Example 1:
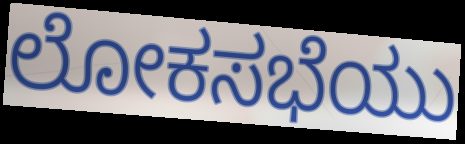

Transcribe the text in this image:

ಲೋಕಸಭೆಯು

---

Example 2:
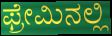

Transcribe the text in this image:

ಫ್ರೇಮಿನಲ್ಲಿ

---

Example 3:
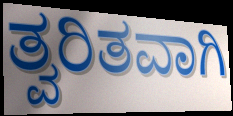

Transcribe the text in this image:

ತ್ವರಿತವಾಗಿ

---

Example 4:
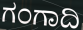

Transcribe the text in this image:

ಗಂಗಾದಿ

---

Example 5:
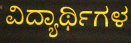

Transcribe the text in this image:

ವಿದ್ಯಾರ್ಥಿಗಳ